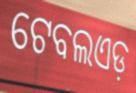
ଟେବଲଏଡ଼